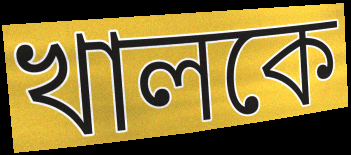
খালকে